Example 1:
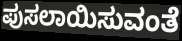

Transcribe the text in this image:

ಪುಸಲಾಯಿಸುವಂತೆ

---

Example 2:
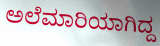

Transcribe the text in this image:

ಅಲೆಮಾರಿಯಾಗಿದ್ದ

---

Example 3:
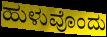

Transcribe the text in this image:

ಹುಳುವೊಂದು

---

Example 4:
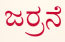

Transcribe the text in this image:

ಜರ್ರನೆ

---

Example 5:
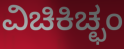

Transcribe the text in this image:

ವಿಚಿಕಿಚ್ಛಂ